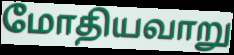
மோதியவாறு